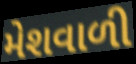
મેશવાળી